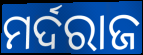
ମର୍ଦରାଜ